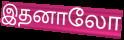
இதனாலோ